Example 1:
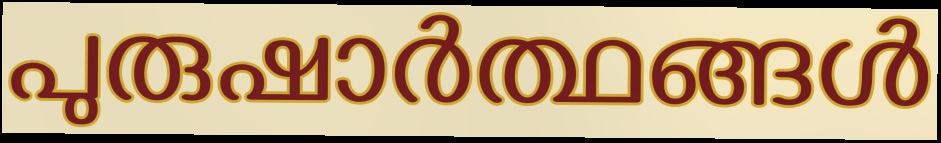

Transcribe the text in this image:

പുരുഷാർത്ഥങ്ങൾ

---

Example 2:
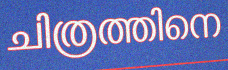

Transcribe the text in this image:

ചിത്രത്തിനെ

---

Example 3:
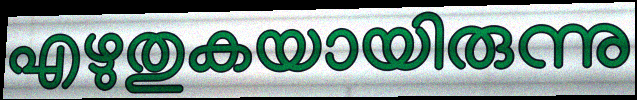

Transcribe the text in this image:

എഴുതുകയായിരുന്നു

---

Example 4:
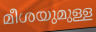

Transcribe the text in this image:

മീശയുമുള്ള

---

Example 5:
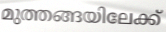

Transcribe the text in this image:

മുത്തങ്ങയിലേക്ക്